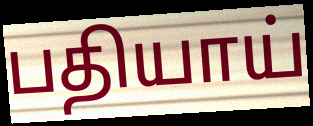
பதியாய்